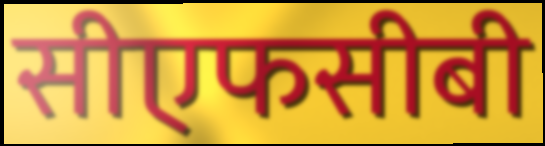
सीएफसीबी